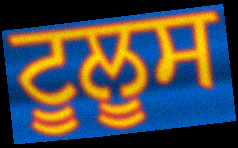
ਟੂਲੂਸ